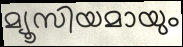
മ്യൂസിയമായും